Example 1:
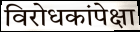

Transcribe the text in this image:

विरोधकांपेक्षा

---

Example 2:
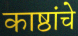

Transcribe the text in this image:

काष्ठांचे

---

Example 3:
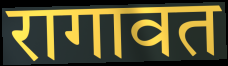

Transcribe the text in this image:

रागावत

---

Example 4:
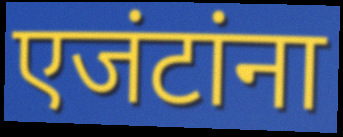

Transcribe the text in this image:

एजंटांना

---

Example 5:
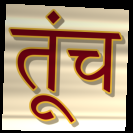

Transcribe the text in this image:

तूंच